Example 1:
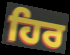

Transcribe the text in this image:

ਹਿਰ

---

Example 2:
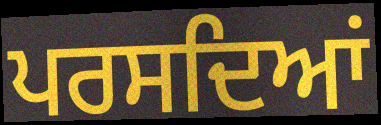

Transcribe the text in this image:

ਪਰਸਦਿਆਂ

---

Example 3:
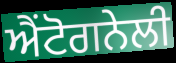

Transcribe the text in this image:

ਐਂਟੋਗਨੇਲੀ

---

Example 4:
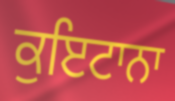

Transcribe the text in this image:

ਕੁਇਟਾਨਾ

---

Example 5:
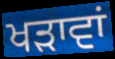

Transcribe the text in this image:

ਖੜਾਵਾਂ